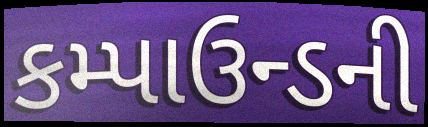
કમ્પાઉન્ડની